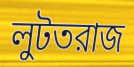
লুটতরাজ